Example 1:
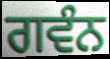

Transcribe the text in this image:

ਗਵੰਨ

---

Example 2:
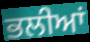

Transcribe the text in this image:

ਭਲੀਆਂ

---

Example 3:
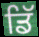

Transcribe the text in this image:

ਡਿੱ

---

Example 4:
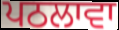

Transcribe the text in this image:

ਪਠਲਾਵਾ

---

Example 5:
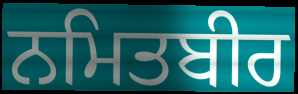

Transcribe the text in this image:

ਨਮਿਤਬੀਰ